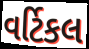
વર્ટિકલ